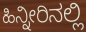
ಹಿನ್ನೀರಿನಲ್ಲಿ